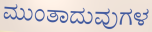
ಮುಂತಾದುವುಗಳ